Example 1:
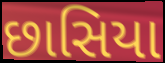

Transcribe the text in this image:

છાસિયા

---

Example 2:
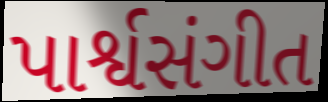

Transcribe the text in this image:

પાર્શ્વસંગીત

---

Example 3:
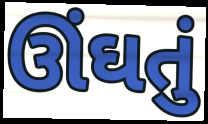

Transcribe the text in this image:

ઊંઘતું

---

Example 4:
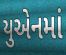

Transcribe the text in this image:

યુએનમાં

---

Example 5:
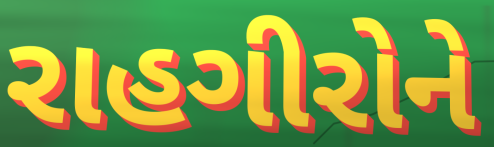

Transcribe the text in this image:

રાહગીરોને